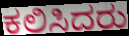
ಕಲಿಸಿದರು